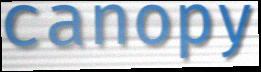
canopy